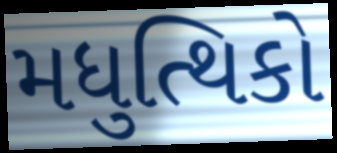
મધુત્થિકો